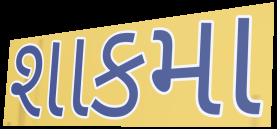
શાકમા